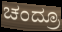
ಚಂದ್ರೂ